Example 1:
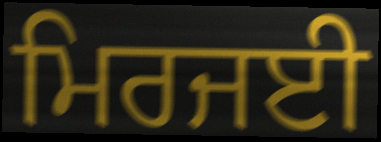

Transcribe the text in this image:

ਮਿਰਜਈ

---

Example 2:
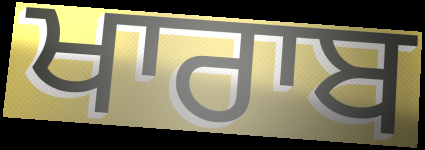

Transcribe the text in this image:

ਖਾਰਾਬ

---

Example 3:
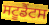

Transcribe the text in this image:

ਸਟੂਡੈਂਟਸ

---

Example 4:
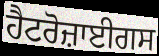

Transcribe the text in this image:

ਹੈਟਰੋਜ਼ਾਈਗਸ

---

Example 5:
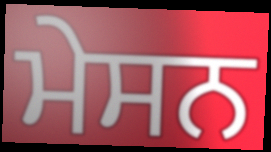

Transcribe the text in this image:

ਮੇਸਨ